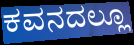
ಕವನದಲ್ಲೂ